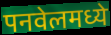
पनवेलमध्ये